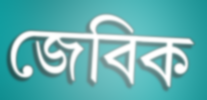
জেবিক